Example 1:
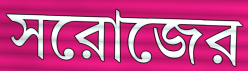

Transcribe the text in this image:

সরোজের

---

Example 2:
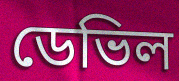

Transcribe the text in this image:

ডেভিল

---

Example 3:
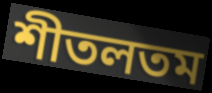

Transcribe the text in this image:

শীতলতম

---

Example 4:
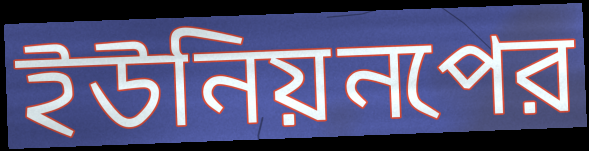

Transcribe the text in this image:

ইউনিয়নপের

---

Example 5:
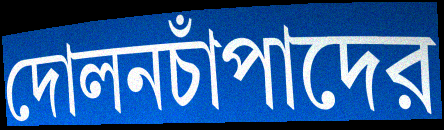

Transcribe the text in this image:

দোলনচাঁপাদের